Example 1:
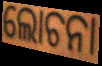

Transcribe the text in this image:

ଲୋଚନା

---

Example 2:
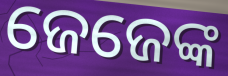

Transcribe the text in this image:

ଜେଜେଙ୍କ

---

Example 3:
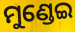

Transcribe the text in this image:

ମୁଣ୍ଡେଇ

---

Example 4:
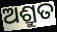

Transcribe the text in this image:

ଅଶ୍ରୁତ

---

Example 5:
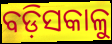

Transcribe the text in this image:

ବଡ଼ିସକାଳୁ